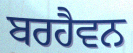
ਬਰਹੈਵਨ